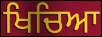
ਖਿਚਿਆ